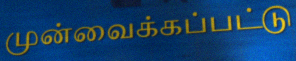
முன்வைக்கப்பட்டு